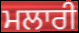
ਮਲਾਰੀ